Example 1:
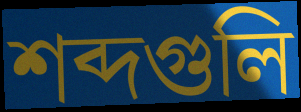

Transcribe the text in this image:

শব্দগুলি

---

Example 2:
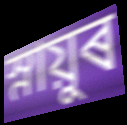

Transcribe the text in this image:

স্নায়ুৰ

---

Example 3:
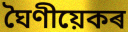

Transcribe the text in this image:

ঘৈণীয়েকৰ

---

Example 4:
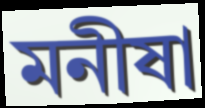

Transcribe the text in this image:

মনীষা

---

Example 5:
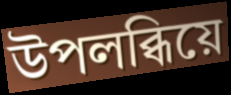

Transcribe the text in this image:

উপলব্ধিয়ে